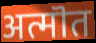
अत्मॊत